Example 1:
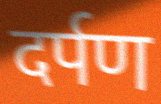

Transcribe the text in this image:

दर्पण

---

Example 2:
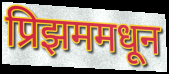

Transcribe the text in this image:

प्रिझममधून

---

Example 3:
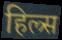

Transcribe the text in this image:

हिल्स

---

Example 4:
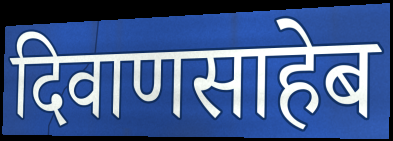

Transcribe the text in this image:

दिवाणसाहेब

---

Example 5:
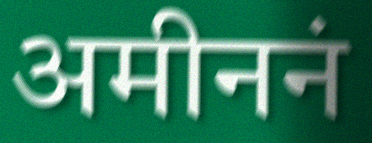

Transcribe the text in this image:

अमीननं